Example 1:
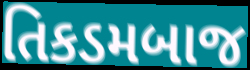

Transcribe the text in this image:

તિકડમબાજ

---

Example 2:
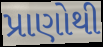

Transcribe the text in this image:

પ્રાણોથી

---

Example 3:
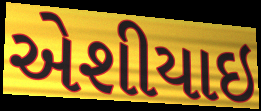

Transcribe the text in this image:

એશીયાઇ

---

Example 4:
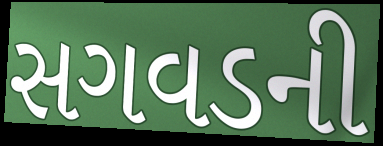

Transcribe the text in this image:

સગવડની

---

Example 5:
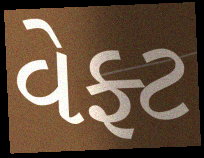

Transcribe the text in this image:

વેફ્ટ